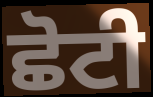
ਛੋਟੀ